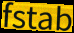
fstab